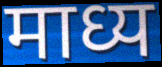
माध्य